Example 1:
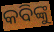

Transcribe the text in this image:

କବିଙ୍କୁ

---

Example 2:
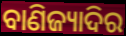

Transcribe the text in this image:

ବାଣିଜ୍ୟାଦିର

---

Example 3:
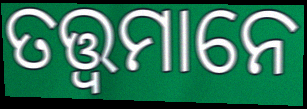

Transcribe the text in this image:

ତତ୍ତ୍ବମାନେ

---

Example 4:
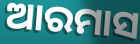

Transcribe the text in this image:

ଆରମାସ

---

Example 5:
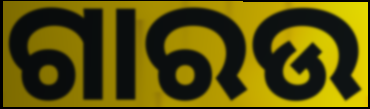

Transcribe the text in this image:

ଗାରଉ